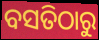
ବସତିଠାରୁ